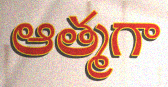
ఆత్మగా